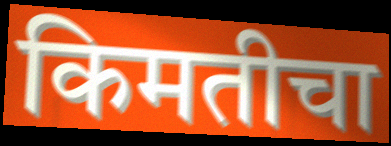
किमतीचा